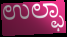
ಉಲ್ಫಾ